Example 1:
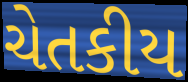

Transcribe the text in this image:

ચેતકીય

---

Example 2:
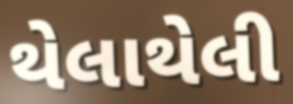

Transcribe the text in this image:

થેલાથેલી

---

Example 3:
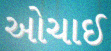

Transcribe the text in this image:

ઓચાઈ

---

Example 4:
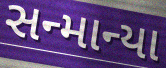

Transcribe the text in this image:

સન્માન્યા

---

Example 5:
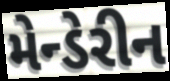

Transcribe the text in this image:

મેન્ડેરીન